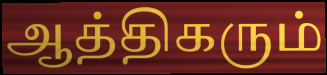
ஆத்திகரும்